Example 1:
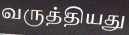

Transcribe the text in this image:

வருத்தியது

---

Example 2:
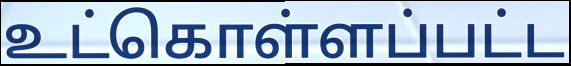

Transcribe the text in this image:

உட்கொள்ளப்பட்ட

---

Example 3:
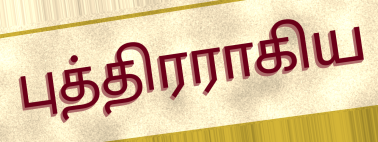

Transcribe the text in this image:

புத்திரராகிய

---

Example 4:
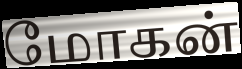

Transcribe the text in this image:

மோகன்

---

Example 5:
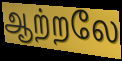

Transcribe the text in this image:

ஆற்றலே